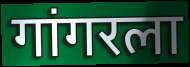
गांगरला